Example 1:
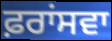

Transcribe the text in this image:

ਫ਼ਰਾਂਸਵਾ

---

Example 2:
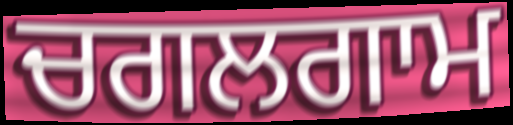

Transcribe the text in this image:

ਚਗਲਗਾਮ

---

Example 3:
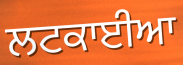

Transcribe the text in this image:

ਲਟਕਾਈਆ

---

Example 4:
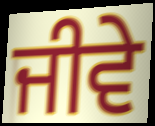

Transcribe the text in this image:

ਜੀਵੇ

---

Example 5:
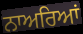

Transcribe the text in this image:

ਨਾਅਰਿਆਂ